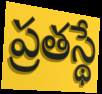
ప్రతస్థే